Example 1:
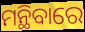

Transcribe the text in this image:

ମନ୍ଥିବାରେ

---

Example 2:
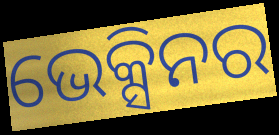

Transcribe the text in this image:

ଭେକ୍ସିନର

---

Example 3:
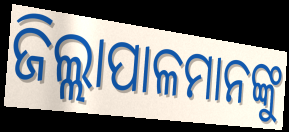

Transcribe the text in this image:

ଜିଲ୍ଲାପାଳମାନଙ୍କୁ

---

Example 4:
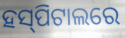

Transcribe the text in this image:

ହସ୍‌ପିଟାଲରେ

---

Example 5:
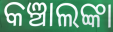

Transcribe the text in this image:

କଞ୍ଚାଲଙ୍କା